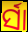
ର୍ସା